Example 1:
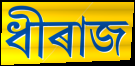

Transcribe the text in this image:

ধীৰাজ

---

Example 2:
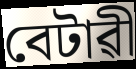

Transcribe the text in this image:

বেটাৱী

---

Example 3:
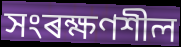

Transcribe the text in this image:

সংৰক্ষণশীল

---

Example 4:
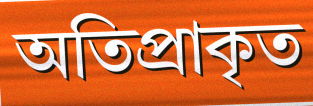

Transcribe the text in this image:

অতিপ্ৰাকৃত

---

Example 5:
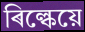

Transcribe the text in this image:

ৰিল্কেয়ে